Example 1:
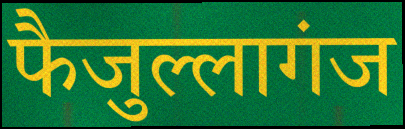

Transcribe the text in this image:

फैजुल्लागंज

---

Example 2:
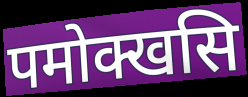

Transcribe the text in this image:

पमोक्खसि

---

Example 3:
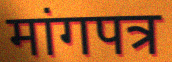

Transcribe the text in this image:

मांगपत्र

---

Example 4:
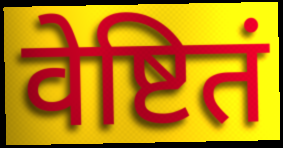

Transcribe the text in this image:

वेष्टितं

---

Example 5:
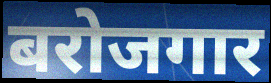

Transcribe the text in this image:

बरोजगार